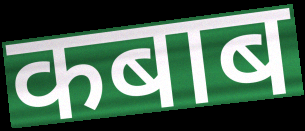
कबाब